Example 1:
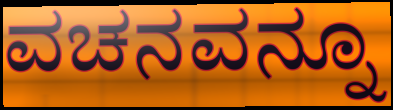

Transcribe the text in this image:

ವಚನವನ್ನೂ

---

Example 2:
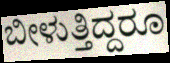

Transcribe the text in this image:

ಬೀಳುತ್ತಿದ್ದರೂ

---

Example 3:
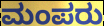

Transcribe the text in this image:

ಮಂಪರು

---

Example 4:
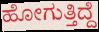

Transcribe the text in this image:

ಹೋಗುತ್ತಿದ್ದೆ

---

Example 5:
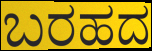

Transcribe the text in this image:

ಬರಹದ